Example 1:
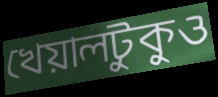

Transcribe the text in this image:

খেয়ালটুকুও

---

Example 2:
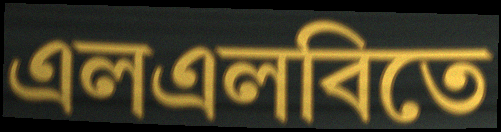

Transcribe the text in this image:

এলএলবিতে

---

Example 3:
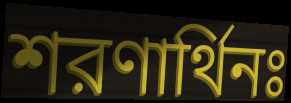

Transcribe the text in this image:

শরণার্থিনঃ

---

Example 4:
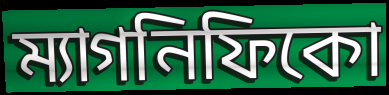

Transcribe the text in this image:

ম্যাগনিফিকো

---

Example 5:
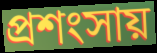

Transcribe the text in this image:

প্রশংসায়